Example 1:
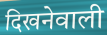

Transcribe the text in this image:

दिखनेवाली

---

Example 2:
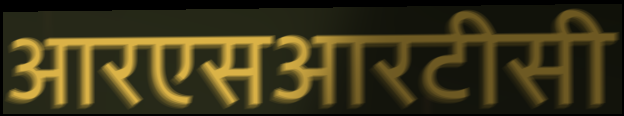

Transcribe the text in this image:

आरएसआरटीसी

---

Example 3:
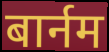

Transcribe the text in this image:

बार्नम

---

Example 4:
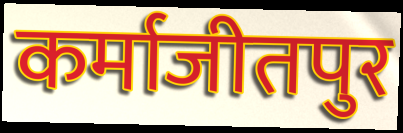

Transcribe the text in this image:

कर्माजीतपुर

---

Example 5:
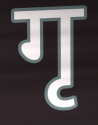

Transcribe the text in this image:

गृ